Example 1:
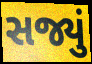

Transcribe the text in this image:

સજ્યું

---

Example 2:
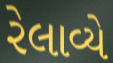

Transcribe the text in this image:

રેલાવ્યે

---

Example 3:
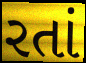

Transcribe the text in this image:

રતાં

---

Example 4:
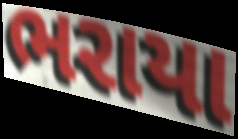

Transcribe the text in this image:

ભરાયા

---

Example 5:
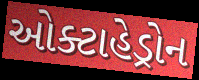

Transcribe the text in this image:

ઓક્ટાહેડ્રોન